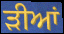
ੜੀਆਂ